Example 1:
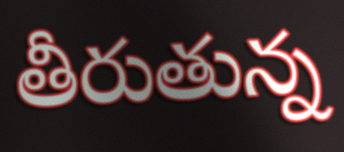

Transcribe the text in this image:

తీరుతున్న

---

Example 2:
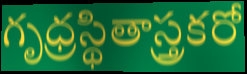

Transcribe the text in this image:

గృధ్రస్థితాస్త్రకరో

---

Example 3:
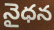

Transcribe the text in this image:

నైధన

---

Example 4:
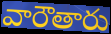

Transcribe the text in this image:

వారౌతారు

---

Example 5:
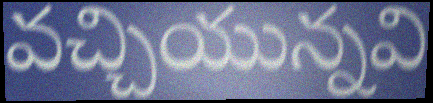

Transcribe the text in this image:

వచ్చియున్నవి